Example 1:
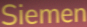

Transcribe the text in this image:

Siemen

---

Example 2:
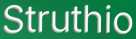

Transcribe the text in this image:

Struthio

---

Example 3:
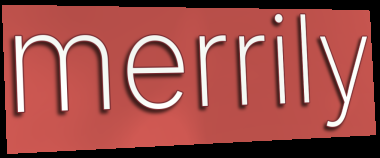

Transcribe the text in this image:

merrily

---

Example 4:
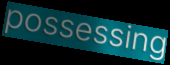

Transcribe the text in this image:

possessing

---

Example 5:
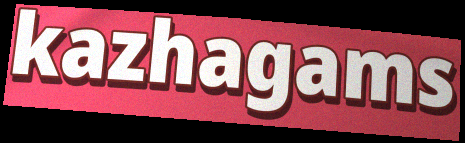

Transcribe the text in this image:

kazhagams